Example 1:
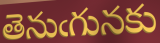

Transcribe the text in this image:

తెనుఁగునకు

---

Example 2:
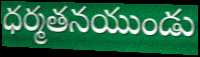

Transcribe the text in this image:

ధర్మతనయుండు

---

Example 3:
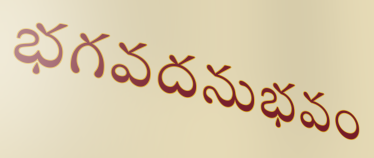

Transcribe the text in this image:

భగవదనుభవం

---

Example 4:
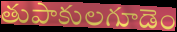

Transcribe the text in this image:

తుపాకులగూడెం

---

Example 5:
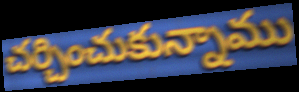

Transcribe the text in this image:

చర్చించుకున్నాము